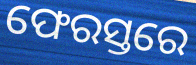
ଫେରସ୍ତରେ